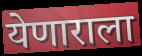
येणाराला